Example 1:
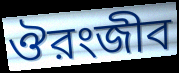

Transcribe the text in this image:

ঔরংজীব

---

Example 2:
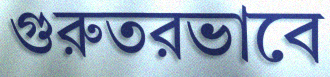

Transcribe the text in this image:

গুরুতরভাবে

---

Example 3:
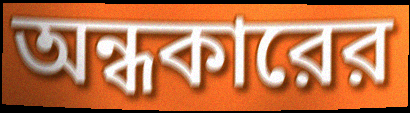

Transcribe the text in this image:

অন্ধকারের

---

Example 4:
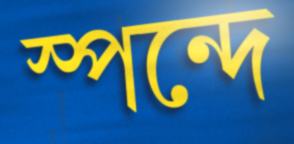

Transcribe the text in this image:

স্পন্দে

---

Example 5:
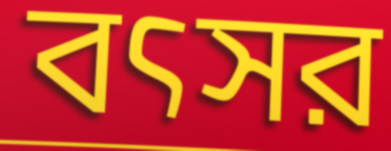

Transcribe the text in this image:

বৎসর